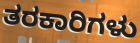
ತರಕಾರಿಗಳು